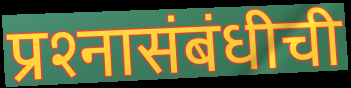
प्रश्नासंबंधीची